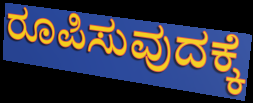
ರೂಪಿಸುವುದಕ್ಕೆ